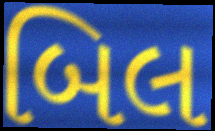
બિલ